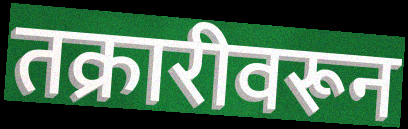
तक्रारीवरून